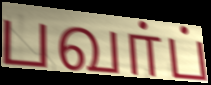
பவர்ப்